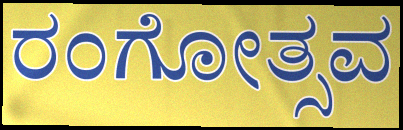
ರಂಗೋತ್ಸವ